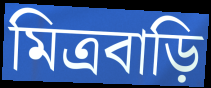
মিত্রবাড়ি